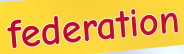
federation